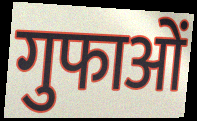
गुफाओं